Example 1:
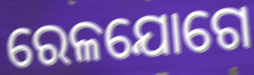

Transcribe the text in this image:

ରେଳଯୋଗେ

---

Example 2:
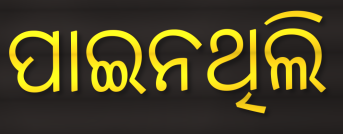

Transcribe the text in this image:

ପାଇନଥିଲି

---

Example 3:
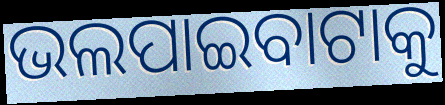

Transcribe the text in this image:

ଭଲପାଇବାଟାକୁ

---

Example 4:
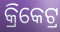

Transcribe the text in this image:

କ୍ରିକେଟ୍ର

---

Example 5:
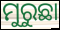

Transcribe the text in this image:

ମୁରୁଛା